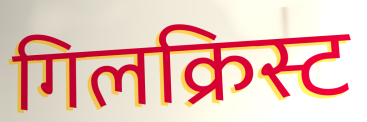
गिलक्रिस्‍ट